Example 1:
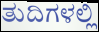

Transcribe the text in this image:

ತುದಿಗಳಲ್ಲಿ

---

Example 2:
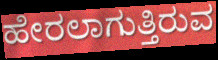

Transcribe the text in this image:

ಹೇರಲಾಗುತ್ತಿರುವ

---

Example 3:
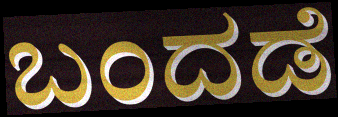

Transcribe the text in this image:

ಬಂದಡೆ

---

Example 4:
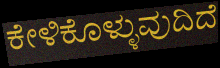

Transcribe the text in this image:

ಕೇಳಿಕೊಳ್ಳುವುದಿದೆ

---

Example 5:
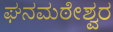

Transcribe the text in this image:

ಘನಮಠೇಶ್ವರ